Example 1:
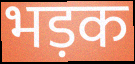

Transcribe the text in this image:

भड़क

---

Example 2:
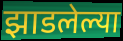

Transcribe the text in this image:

झाडलेल्या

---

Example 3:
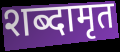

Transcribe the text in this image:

शब्दामृत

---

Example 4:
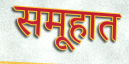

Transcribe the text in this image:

समूहात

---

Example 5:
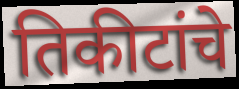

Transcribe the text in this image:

तिकीटांचे